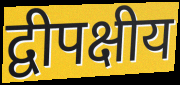
द्वीपक्षीय